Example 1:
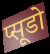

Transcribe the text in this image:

प्सूडो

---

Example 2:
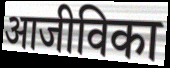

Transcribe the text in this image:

आजीविका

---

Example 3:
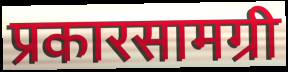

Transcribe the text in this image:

प्रकारसामग्री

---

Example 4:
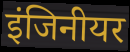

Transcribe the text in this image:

इंजिनीयर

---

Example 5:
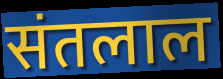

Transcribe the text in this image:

संतलाल